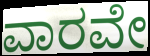
ವಾರವೇ